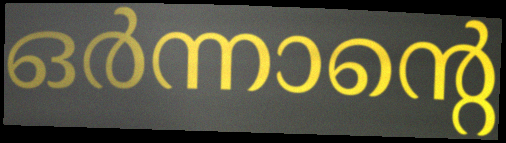
ഒർന്നാന്റെ